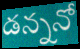
డన్ననో